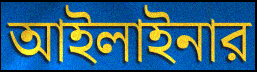
আইলাইনার